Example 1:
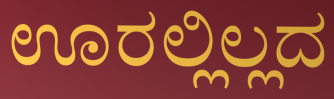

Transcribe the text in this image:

ಊರಲ್ಲಿಲ್ಲದ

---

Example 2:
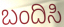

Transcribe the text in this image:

ಬಂದಿಸಿ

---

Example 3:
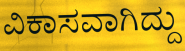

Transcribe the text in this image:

ವಿಕಾಸವಾಗಿದ್ದು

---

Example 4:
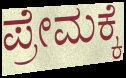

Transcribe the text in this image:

ಪ್ರೇಮಕ್ಕೆ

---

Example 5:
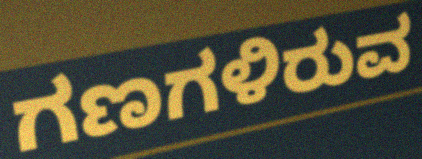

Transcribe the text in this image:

ಗಣಗಳಿರುವ